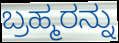
ಬ್ರಹ್ಮರನ್ನು